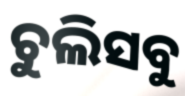
ଚୁଲିସବୁ